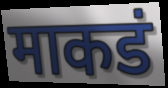
माकडं